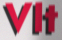
VIt